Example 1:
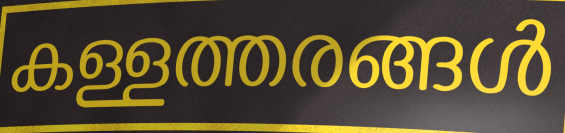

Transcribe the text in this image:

കള്ളത്തരങ്ങൾ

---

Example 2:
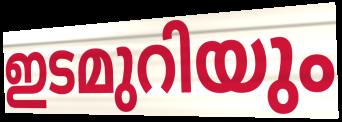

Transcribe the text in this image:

ഇടമുറിയും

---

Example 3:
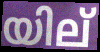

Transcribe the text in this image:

യില്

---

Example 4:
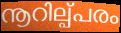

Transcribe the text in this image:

നൂറില്പ്പരം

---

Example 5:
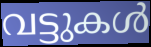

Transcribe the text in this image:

വട്ടുകൾ